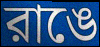
রাঙে